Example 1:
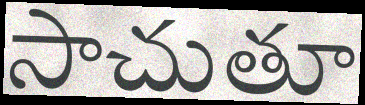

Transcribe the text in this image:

సాచుతూ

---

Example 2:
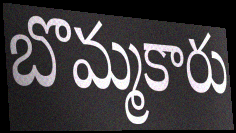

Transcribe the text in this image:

బొమ్మకారు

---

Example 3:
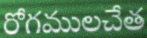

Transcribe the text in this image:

రోగములచేత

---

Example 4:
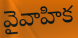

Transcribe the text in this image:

వైవాహిక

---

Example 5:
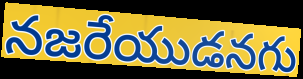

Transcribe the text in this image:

నజరేయుడనగు